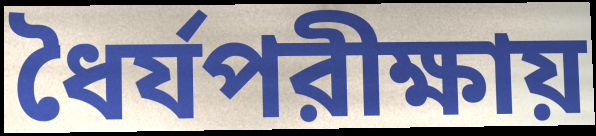
ধৈর্যপরীক্ষায়